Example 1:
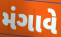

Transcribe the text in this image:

મંગાવે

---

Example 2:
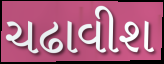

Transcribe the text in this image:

ચઢાવીશ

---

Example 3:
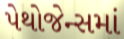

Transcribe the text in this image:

પેથોજેન્સમાં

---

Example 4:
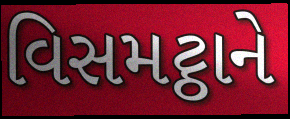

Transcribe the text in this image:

વિસમટ્ઠાને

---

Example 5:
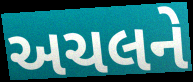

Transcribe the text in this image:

અચલને